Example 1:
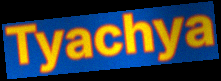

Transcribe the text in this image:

Tyachya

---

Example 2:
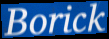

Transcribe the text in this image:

Borick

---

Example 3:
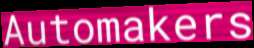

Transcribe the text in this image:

Automakers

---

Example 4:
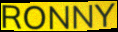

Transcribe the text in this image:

RONNY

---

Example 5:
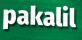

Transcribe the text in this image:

pakalil